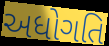
અધોગતિ